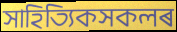
সাহিত্যিকসকলৰ